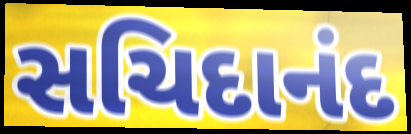
સચિદાનંદ